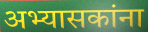
अभ्यासकांना